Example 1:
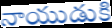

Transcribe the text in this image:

నాయుడుకి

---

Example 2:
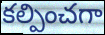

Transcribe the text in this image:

కల్పించగా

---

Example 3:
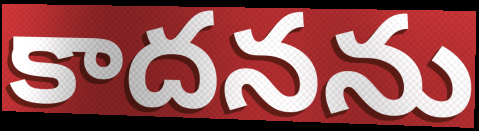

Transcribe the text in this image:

కాదనను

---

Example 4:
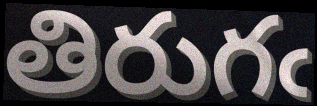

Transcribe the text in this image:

తిరుగఁ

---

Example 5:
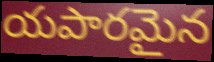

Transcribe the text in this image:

యపారమైన